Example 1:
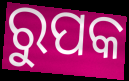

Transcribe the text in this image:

ରୁପକ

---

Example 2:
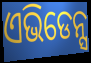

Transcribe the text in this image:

ଏଭିଡେନ୍ସ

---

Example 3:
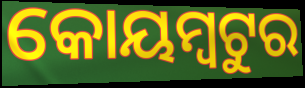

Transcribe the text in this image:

କୋୟମ୍ବଟୁର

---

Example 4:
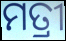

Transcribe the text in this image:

ମତ୍ରୀ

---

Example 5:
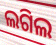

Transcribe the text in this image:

ଲଗିଲ